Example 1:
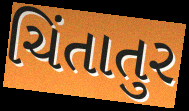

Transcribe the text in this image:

ચિંતાતુર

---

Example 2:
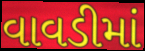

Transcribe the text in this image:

વાવડીમાં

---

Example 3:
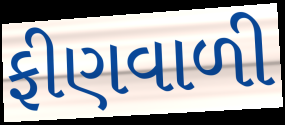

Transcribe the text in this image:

ફીણવાળી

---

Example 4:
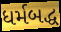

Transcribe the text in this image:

ધર્મબદ્ધ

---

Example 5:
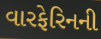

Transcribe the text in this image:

વારફેરિનની